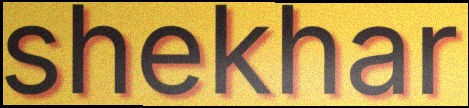
shekhar